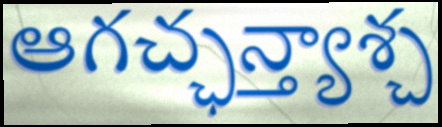
ఆగచ్ఛన్త్యాశ్చ